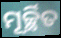
ମୂର୍ଚ୍ଛିତ